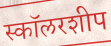
स्कॉलरशीप